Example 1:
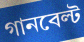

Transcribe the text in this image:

গানবেল্ট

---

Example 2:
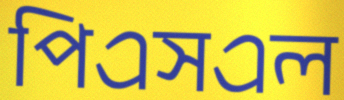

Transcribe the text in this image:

পিএসএল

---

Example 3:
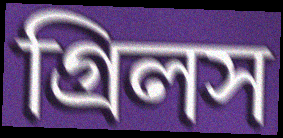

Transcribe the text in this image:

গ্রিলস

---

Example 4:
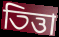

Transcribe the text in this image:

তিত্তা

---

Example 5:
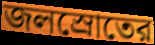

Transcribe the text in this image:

জলস্রোতের